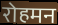
रोहमन